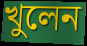
খুলেন